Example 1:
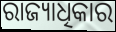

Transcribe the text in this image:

ରାଜ୍ୟାଧିକାର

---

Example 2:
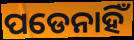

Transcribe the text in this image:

ପଡେନାହିଁ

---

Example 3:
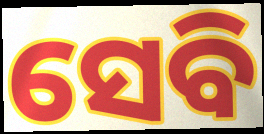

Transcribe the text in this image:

ସେବି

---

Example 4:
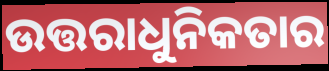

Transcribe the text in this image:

ଉତ୍ତରାଧୁନିକତାର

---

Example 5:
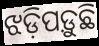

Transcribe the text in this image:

ଝଡ଼ିପଡ଼ୁଛି